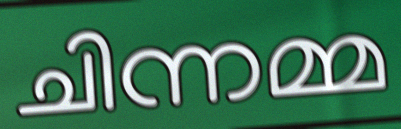
ചിന്നമ്മ